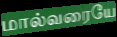
மால்வரையே